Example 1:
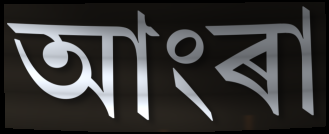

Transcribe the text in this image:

আংৰা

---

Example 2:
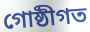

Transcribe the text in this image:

গোষ্ঠীগত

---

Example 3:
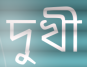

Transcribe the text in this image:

দুখী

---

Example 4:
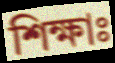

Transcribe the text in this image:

শিক্ষাঃ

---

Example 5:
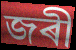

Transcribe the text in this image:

জৰী